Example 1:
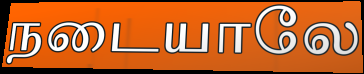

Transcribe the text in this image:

நடையாலே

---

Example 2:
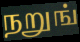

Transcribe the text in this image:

நறுங்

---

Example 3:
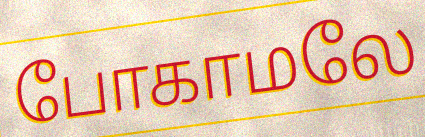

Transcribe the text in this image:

போகாமலே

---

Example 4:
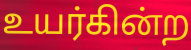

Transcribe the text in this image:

உயர்கின்ற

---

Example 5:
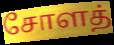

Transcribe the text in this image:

சோளத்